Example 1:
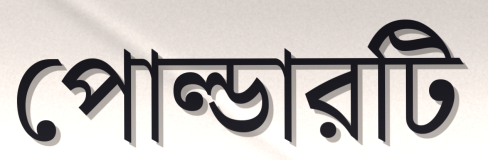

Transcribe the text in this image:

পোল্ডারটি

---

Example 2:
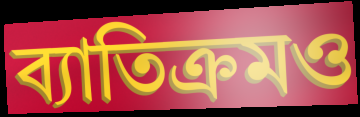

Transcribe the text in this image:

ব্যাতিক্রমও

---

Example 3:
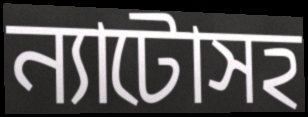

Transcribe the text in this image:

ন্যাটোসহ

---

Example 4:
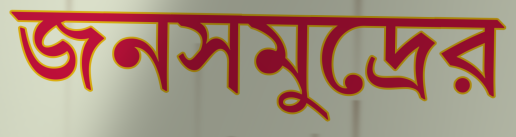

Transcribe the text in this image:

জনসমুদ্রের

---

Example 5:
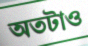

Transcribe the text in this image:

অতটাও